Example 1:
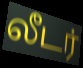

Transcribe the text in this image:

லீடர்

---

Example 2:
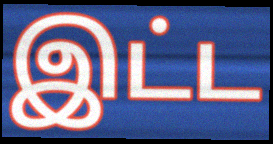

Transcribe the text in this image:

இட்ட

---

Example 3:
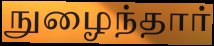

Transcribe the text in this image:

நுழைந்தார்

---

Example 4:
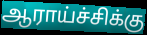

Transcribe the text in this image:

ஆராய்ச்சிக்கு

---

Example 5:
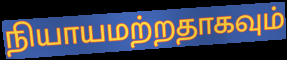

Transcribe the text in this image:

நியாயமற்றதாகவும்